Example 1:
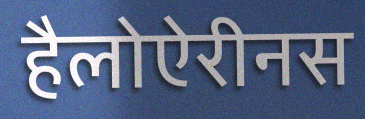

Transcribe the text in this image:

हैलोऐरीनस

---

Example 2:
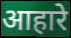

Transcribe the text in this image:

आहारे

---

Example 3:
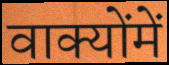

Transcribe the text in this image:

वाक्योंमें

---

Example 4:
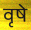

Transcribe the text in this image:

वृषे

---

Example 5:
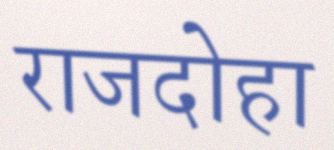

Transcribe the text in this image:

राजदोहा